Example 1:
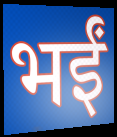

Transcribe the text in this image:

भईं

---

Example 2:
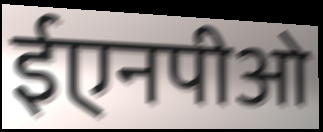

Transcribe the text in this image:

ईएनपीओ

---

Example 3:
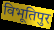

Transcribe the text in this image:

विभूतिपुर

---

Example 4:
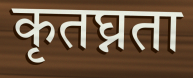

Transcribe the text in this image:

कृतघ्नता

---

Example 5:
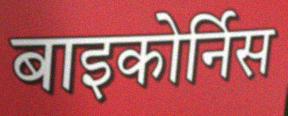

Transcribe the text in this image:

बाइकोर्निस